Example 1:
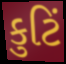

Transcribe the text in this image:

કુટિં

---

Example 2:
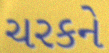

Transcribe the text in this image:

ચરકને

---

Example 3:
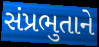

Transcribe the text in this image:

સંપ્રભુતાને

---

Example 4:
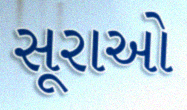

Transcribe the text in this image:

સૂરાઓ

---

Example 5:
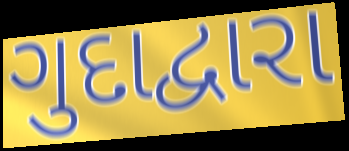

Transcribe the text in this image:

ગુદાદ્વારા